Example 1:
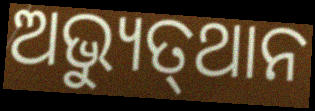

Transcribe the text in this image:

ଅଭ୍ୟୁତ୍‌ଥାନ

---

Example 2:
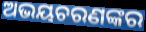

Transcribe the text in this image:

ଅଭୟଚରଣଙ୍କର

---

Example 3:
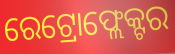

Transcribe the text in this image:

ରେଟ୍ରୋଫ୍ଲେକ୍ଟର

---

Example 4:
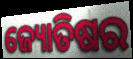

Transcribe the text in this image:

ଜ୍ୟୋତିଷର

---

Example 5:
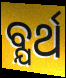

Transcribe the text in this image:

ବ୍ଯର୍ଥ